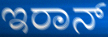
ಇರಾನ್